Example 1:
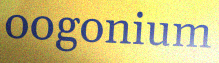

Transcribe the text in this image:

oogonium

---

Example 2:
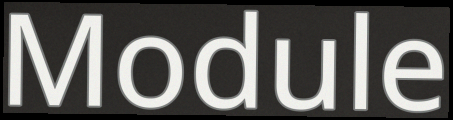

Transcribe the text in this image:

Module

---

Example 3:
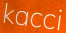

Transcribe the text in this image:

kacci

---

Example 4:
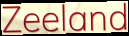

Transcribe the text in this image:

Zeeland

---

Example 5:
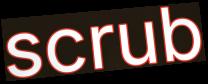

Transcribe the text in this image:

scrub